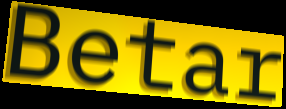
Betar